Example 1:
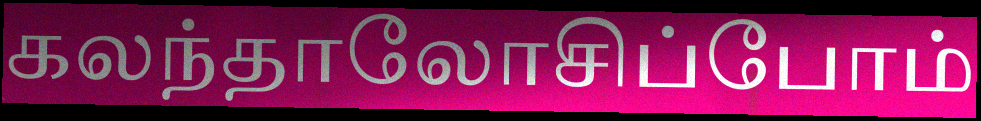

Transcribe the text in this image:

கலந்தாலோசிப்போம்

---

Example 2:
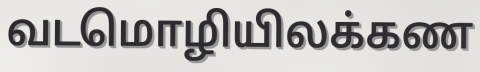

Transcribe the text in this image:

வடமொழியிலக்கண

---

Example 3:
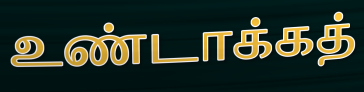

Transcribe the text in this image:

உண்டாக்கத்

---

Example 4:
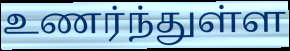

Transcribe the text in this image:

உணர்ந்துள்ள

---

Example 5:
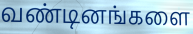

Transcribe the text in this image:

வண்டினங்களை